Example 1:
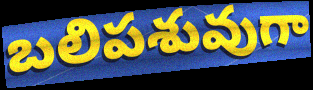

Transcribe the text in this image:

బలిపశువుగా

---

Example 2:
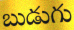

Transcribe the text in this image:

బుడుగు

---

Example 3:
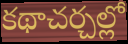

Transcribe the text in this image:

కథాచర్చల్లో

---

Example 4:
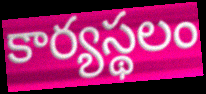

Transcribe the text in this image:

కార్యస్థలం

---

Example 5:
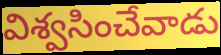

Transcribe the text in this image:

విశ్వసించేవాడు